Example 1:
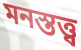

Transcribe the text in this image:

মনস্তত্ত্ব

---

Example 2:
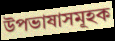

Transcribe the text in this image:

উপভাষাসমূহক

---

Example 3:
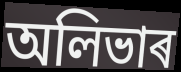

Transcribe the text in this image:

অলিভাৰ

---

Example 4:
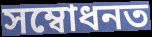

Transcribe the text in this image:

সম্বোধনত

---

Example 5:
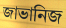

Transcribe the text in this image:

জাভানিজ